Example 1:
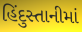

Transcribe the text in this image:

હિંદુસ્તાનીમાં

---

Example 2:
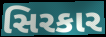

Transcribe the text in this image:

સિરકાર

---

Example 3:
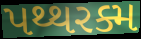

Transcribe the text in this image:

પથ્થરક્મ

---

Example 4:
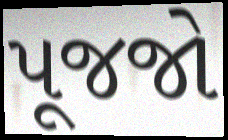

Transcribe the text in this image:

પૂજજો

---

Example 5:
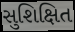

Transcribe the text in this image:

સુશિક્ષિત